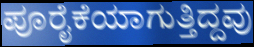
ಪೂರೈಕೆಯಾಗುತ್ತಿದ್ದವು